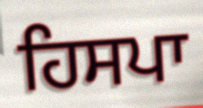
ਹਿਸਪਾ